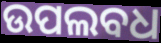
ଉପଲବଧ